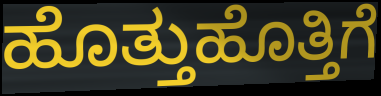
ಹೊತ್ತುಹೊತ್ತಿಗೆ